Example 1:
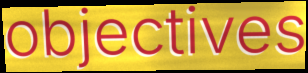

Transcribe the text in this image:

objectives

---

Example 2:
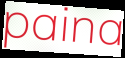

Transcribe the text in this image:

paina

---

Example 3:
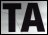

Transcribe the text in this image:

TA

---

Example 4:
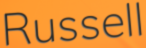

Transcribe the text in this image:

Russell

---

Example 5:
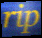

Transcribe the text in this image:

rip